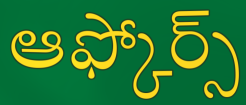
ఆఫ్కోర్స్